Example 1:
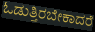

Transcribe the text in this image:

ಓಡುತ್ತಿರಬೇಕಾದರೆ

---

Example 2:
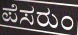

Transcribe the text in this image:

ಪೆಸರುಂ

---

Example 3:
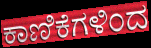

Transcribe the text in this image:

ಕಾಣಿಕೆಗಳಿಂದ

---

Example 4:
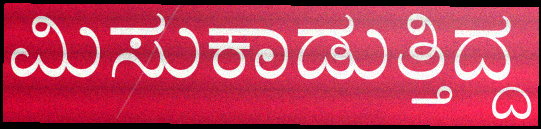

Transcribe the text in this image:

ಮಿಸುಕಾಡುತ್ತಿದ್ದ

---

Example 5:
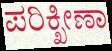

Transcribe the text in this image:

ಪರಿಕ್ಖೀಣಾ